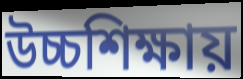
উচ্চশিক্ষায়